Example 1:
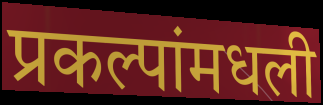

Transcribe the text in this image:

प्रकल्पांमधली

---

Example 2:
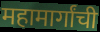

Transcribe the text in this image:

महामार्गांची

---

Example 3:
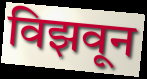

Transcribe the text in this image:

विझवून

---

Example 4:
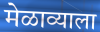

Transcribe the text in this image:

मेळाव्याला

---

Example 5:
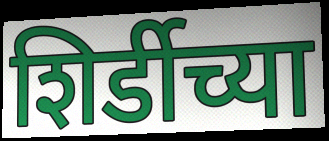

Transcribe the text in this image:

शिर्डीच्या